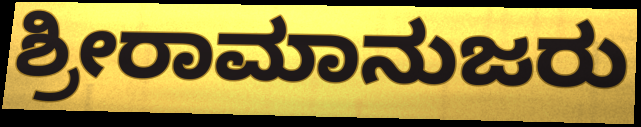
ಶ್ರೀರಾಮಾನುಜರು